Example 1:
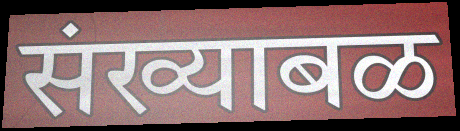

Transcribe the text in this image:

संख्याबळ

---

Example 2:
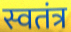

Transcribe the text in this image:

स्‍वतंत्र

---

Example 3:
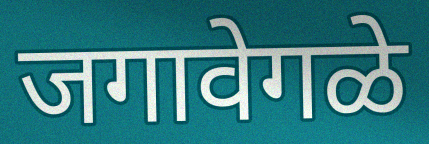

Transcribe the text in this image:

जगावेगळे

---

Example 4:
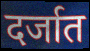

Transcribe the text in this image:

दर्जात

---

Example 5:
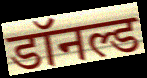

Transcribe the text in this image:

डॉनल्ड